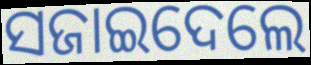
ସଜାଇଦେଲେ